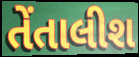
તેંતાલીશ